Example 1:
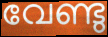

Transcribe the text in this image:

വേണ്ടു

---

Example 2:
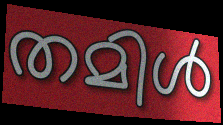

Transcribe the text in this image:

തമിൾ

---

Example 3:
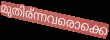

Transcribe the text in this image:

മുതിര്ന്നവരൊക്കെ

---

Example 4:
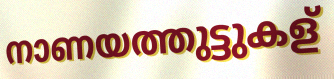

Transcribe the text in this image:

നാണയത്തുട്ടുകള്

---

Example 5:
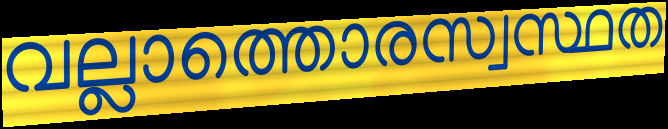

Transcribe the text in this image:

വല്ലാത്തൊരസ്വസ്ഥത